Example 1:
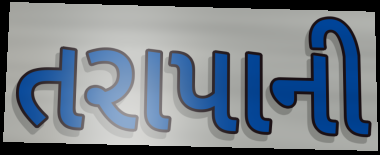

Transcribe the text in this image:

તરાપાની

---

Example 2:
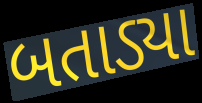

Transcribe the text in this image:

બતાડ્યા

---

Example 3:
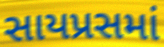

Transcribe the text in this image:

સાયપ્રસમાં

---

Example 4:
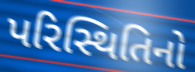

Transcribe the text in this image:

પરિસ્થિતિનો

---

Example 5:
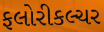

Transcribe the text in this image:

ફલોરીકલ્ચર